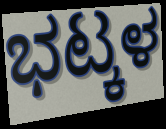
ಭಟ್ಕಳ